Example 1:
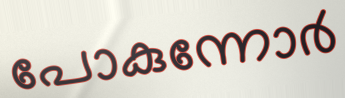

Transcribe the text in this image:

പോകുന്നോർ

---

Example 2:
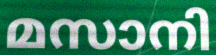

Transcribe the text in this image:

മസാനി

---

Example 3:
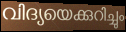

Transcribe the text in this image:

വിദ്യയെക്കുറിച്ചും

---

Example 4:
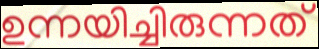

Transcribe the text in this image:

ഉന്നയിച്ചിരുന്നത്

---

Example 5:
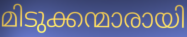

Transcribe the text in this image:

മിടുക്കന്മാരായി